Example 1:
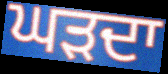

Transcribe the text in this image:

ਘੜਦਾ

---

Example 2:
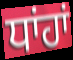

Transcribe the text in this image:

ਧਾਂਹਾਂ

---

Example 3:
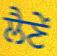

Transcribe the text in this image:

ਲੈਣੇਂ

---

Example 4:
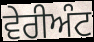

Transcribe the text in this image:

ਵੇਰੀਅੰਟ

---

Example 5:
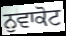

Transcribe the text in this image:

ਨੁਵਾਕੋਟ